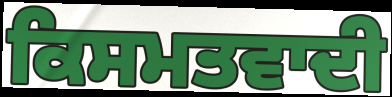
ਕਿਸਮਤਵਾਦੀ